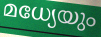
മധ്യേയും